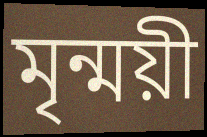
মৃন্ময়ী